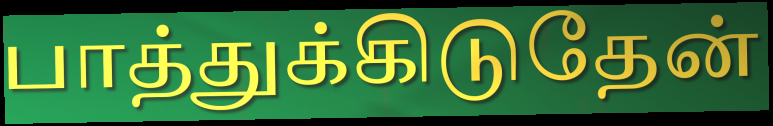
பாத்துக்கிடுதேன்